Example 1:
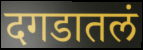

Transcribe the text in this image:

दगडातलं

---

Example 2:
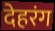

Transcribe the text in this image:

देहरंग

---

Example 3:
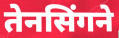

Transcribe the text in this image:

तेनसिंगने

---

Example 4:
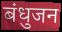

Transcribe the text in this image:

बंधुजन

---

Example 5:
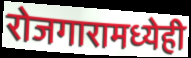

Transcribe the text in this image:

रोजगारामध्येही